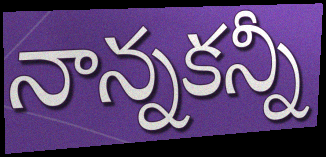
నాన్నకన్నీ